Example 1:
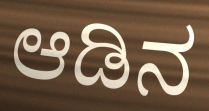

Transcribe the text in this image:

ಆಡಿನ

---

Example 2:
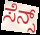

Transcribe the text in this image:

ಸೆನ್ಸ್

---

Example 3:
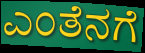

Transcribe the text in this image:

ಎಂತೆನಗೆ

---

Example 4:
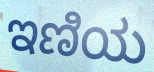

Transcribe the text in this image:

ಇಣಿಯ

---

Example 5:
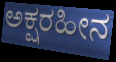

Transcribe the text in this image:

ಅಕ್ಷರಹೀನ